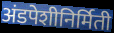
अंडपेशीनिर्मिती